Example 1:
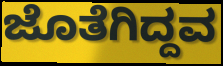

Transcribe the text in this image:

ಜೊತೆಗಿದ್ದವ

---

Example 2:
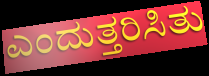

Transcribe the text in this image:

ಎಂದುತ್ತರಿಸಿತು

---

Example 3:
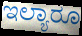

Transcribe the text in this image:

ಇಲ್ಯಾರೂ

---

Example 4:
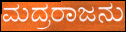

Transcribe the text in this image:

ಮದ್ರರಾಜನು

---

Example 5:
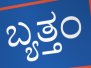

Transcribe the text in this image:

ಬ್ಯತ್ತಂ